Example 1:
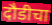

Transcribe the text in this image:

दौडीचा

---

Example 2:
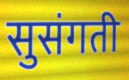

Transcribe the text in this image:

सुसंगती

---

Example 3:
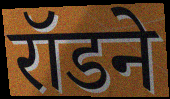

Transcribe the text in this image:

रॉडने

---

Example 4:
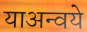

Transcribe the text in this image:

याअन्वये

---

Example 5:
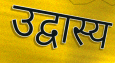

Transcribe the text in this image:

उद्वास्य